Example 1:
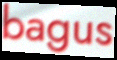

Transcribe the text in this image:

bagus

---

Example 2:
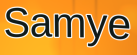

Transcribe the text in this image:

Samye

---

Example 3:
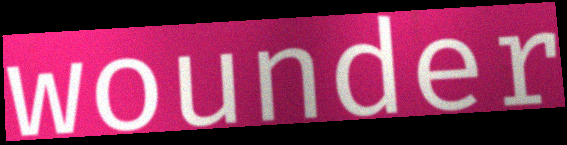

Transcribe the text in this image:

wounder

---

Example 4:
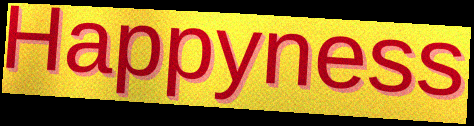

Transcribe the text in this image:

Happyness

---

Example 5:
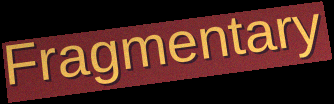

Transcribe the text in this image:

Fragmentary